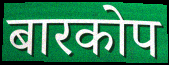
बारकोप